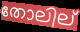
തോലില്